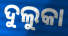
ଦୁଲୁକା